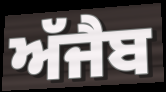
ਅੱਜੈਬ